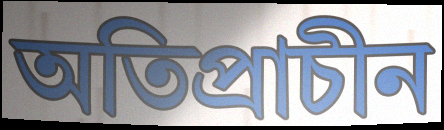
অতিপ্রাচীন